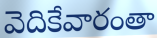
వెదికేవారంతా